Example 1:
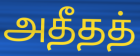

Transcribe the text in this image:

அதீதத்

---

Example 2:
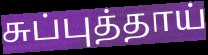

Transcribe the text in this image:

சுப்புத்தாய்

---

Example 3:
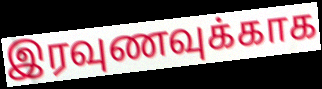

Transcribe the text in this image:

இரவுணவுக்காக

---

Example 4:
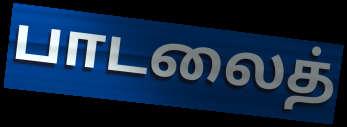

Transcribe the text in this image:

பாடலைத்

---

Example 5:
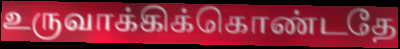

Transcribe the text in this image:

உருவாக்கிக்கொண்டதே